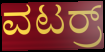
ವಟರ್ರ್